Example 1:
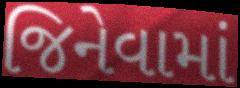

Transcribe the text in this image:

જિનેવામાં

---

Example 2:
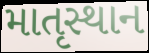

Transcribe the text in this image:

માતૃસ્થાન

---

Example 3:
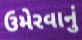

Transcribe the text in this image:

ઉમેરવાનું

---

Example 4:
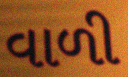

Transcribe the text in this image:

વાળી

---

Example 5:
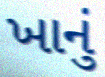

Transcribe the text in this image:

ખાનું